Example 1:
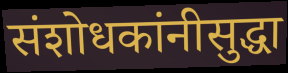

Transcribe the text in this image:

संशोधकांनीसुद्धा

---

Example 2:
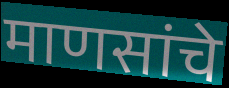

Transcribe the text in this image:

माणसांचे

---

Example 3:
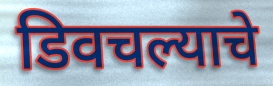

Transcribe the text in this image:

डिवचल्याचे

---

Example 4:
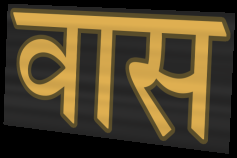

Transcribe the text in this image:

वास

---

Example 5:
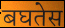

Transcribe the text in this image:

बघतेस